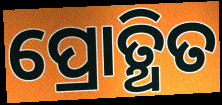
ପ୍ରୋତ୍ଥିତ